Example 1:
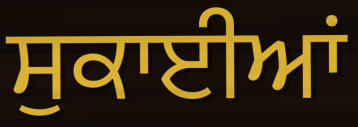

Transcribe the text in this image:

ਸੁਕਾਈਆਂ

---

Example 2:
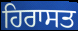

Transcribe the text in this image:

ਹਿਰਾਸਤ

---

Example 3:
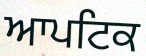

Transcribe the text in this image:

ਆਪਟਿਕ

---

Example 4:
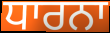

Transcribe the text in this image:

ਧਾਰਨਾ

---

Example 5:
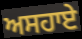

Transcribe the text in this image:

ਅਸਹਾਏ